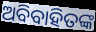
ଅବିବାହିତଙ୍କ